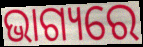
ଭାଗ୍ୟରେ